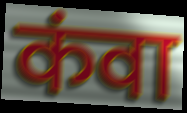
कंवा